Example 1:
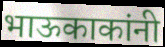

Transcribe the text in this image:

भाऊकाकांनी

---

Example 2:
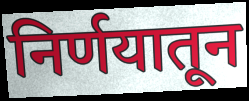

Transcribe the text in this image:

निर्णयातून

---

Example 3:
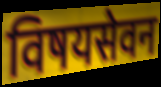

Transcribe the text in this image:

विषयसेवन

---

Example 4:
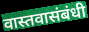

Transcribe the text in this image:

वास्तवासंबंधी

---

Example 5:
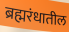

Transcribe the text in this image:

ब्रह्मरंधातील